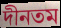
দীনতম